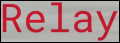
Relay